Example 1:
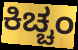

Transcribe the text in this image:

ಕಿಚ್ಚಂ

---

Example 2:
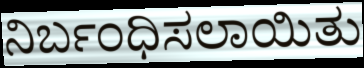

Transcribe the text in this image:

ನಿರ್ಬಂಧಿಸಲಾಯಿತು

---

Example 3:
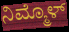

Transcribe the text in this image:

ನಿಮ್ಮೊಳ್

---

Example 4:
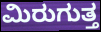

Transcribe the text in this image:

ಮಿರುಗುತ್ತ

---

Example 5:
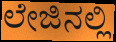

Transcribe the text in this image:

ಲೇಜಿನಲ್ಲಿ